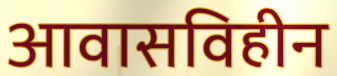
आवासविहीन